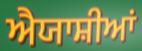
ਐਯਾਸ਼ੀਆਂ